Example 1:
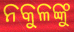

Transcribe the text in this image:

ନକୁଳଙ୍କୁ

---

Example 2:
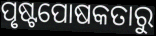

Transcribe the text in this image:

ପୃଷ୍ଟପୋଷକତାରୁ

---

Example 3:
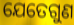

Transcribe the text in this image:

ଯେତେଗୁଣ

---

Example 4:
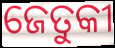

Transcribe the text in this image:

ଜେତୁକୀ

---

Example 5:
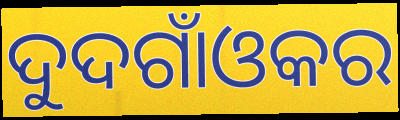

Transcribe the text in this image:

ଦୁଦଗାଁଓକର